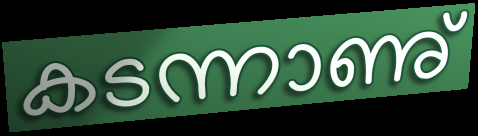
കടന്നാണു്